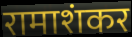
रामाशंकर